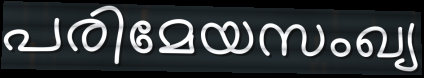
പരിമേയസംഖ്യ